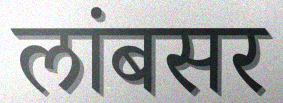
लांबसर